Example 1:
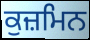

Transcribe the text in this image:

ਕੁਜ਼ਮਿਨ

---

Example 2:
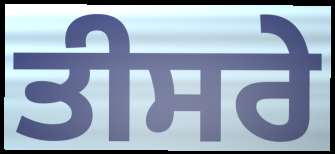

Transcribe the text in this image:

ਤੀਸਰੇ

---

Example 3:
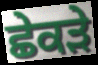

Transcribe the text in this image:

ਛੇਕੜੇ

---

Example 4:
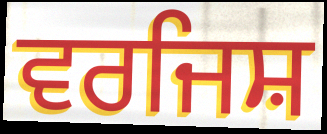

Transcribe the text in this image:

ਵਰਜਿਸ਼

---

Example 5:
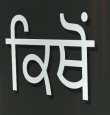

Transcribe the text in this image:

ਕਿਥੋਂ